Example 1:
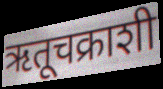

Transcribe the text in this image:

ऋतूचक्राशी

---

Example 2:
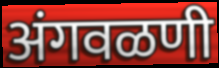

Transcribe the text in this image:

अंगवळणी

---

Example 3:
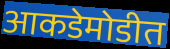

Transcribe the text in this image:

आकडेमोडीत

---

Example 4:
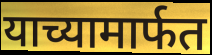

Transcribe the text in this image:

याच्यामार्फत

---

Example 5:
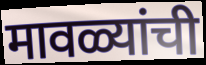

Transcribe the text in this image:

मावळ्यांची